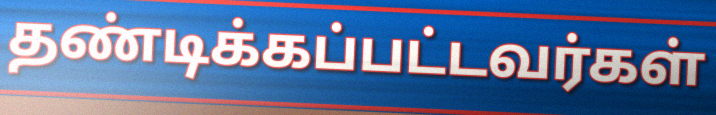
தண்டிக்கப்பட்டவர்கள்